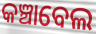
କଞ୍ଚାବେଲ